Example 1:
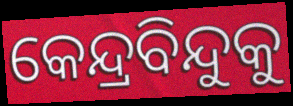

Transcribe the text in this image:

କେନ୍ଦ୍ରବିନ୍ଦୁକୁ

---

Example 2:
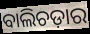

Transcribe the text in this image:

ବାଲିଚଡ଼ାର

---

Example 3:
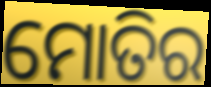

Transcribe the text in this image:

ମୋତିର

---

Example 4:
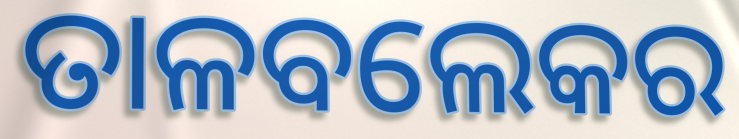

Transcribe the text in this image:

ତାଳବଲେକର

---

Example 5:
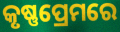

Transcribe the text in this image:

କୃଷ୍ଣପ୍ରେମରେ